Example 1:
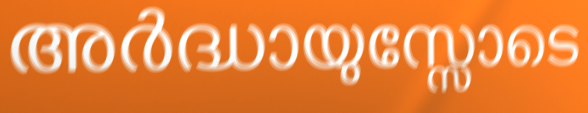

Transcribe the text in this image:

അർദ്ധായുസ്സോടെ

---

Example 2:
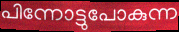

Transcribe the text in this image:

പിന്നോട്ടുപോകുന്ന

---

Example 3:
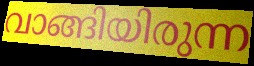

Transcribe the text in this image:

വാങ്ങിയിരുന്ന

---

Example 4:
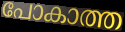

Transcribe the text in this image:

പോകാത്ത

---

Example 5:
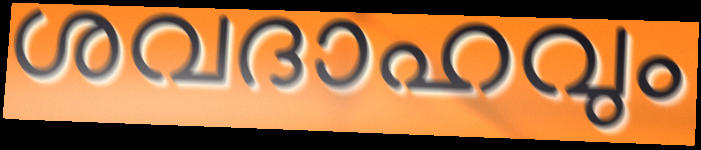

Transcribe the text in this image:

ശവദാഹവും